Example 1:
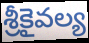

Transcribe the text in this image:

శ్రీకైవల్య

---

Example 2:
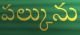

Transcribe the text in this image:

పల్కును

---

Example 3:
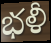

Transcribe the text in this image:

భళీ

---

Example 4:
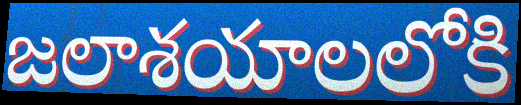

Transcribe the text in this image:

జలాశయాలలోకి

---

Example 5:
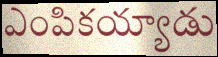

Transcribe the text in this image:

ఎంపికయ్యాడు